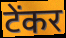
टेंकर